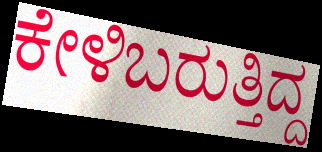
ಕೇಳಿಬರುತ್ತಿದ್ದ